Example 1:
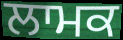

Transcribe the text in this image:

ਲਾਮਕ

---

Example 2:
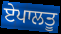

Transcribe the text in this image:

ਏਪਾਲਤੂ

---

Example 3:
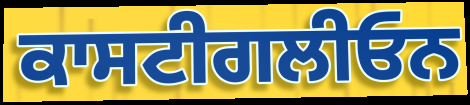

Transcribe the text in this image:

ਕਾਸਟੀਗਲੀਓਨ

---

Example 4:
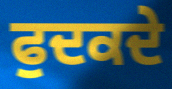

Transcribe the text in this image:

ਫੁਦਕਦੇ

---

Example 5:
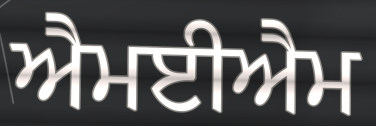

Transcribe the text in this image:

ਐਮਈਐਮ